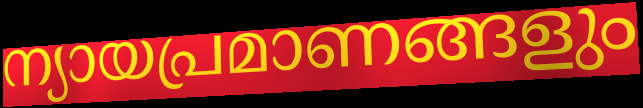
ന്യായപ്രമാണങ്ങളും